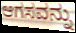
ಆಗಸವನ್ನು